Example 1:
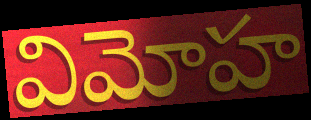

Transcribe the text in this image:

విమోహ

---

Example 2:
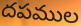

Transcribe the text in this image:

దపముల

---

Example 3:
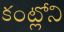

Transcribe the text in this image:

కంట్లోని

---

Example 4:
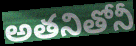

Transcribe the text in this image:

అతనితోనీ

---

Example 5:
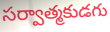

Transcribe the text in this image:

సర్వాత్మకుడగు